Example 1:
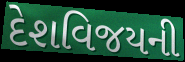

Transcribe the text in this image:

દેશવિજયની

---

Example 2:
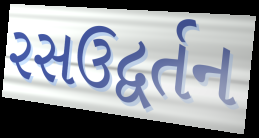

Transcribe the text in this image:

રસઉદ્વર્તન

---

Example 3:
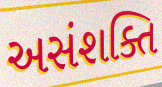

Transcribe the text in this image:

અસંશક્તિ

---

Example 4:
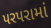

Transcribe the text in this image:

પરપરામાં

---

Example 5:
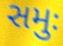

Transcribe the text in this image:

સમુઃ